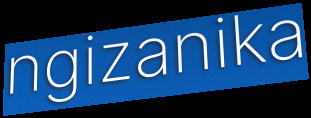
ngizanika